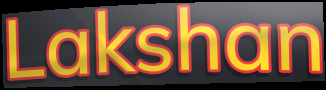
Lakshan